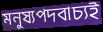
মনুষ্যপদবাচ্যই